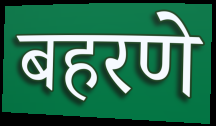
बहरणे